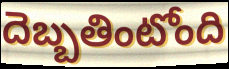
దెబ్బతింటోంది